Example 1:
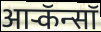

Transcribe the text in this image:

आर्‍कॅन्सॉ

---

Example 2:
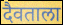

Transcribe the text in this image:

दैवताला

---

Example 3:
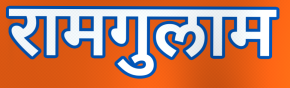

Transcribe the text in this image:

रामगुलाम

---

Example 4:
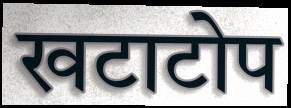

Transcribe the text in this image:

खटाटोप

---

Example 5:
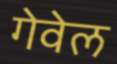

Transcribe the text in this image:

गेवेल